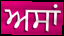
ਅਸਾਂ